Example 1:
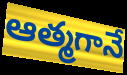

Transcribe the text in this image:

ఆత్మగానే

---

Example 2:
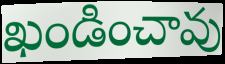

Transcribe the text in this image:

ఖండించావు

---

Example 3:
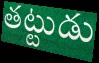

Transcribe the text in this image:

తట్టుడు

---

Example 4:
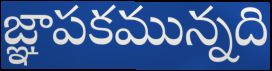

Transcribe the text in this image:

జ్ఞాపకమున్నది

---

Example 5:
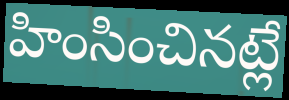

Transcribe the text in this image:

హింసించినట్లే